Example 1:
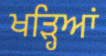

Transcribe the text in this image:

ਖੜ੍ਹਿਆਂ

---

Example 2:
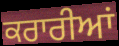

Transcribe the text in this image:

ਕਰਾਰੀਆਂ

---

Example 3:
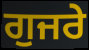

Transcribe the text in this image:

ਗੁਜਰੇ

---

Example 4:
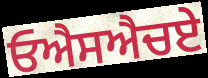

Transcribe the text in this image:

ਓਐਸਐਚਏ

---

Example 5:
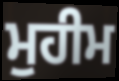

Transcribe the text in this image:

ਮੁਹੀਮ